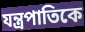
যন্ত্রপাতিকে